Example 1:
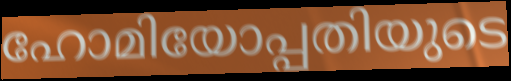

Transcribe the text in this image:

ഹോമിയോപ്പതിയുടെ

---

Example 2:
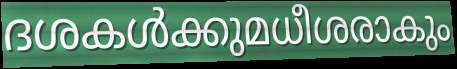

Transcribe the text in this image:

ദശകൾക്കുമധീശരാകും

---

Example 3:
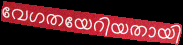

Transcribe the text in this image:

വേഗതയേറിയതായി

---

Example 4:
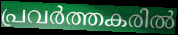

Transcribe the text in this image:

പ്രവർത്തകരിൽ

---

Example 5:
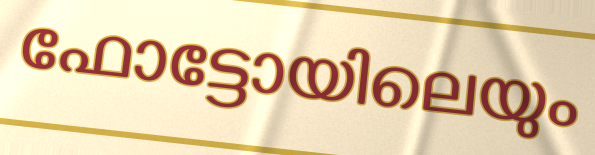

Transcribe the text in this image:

ഫോട്ടോയിലെയും